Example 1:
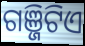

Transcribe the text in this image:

ଗଞ୍ଜିଟିଏ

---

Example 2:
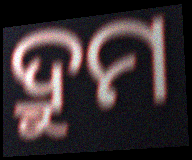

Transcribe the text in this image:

ଦ୍ରୁମ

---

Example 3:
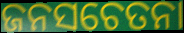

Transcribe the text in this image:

ଜନସଚେତନା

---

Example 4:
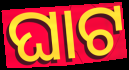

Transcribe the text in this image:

ଘାଟ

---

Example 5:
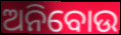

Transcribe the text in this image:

ଅନିବୋଉ